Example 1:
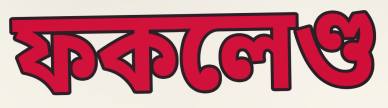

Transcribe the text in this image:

ফকলেণ্ড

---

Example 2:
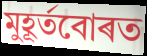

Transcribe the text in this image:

মুহূৰ্তবোৰত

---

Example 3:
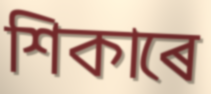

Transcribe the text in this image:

শিকাৰে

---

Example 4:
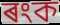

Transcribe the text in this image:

ৰংক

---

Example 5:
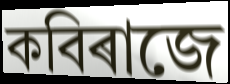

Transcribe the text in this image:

কবিৰাজে